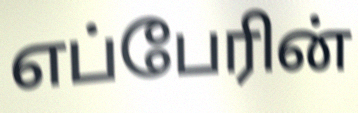
எப்பேரின்